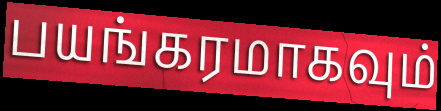
பயங்கரமாகவும்